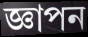
জ্ঞাপন